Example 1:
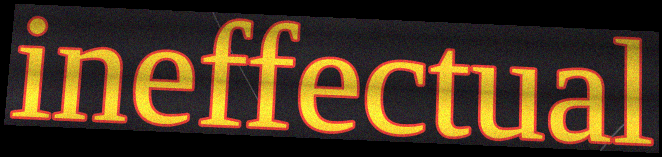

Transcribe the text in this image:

ineffectual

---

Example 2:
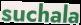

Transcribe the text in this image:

suchala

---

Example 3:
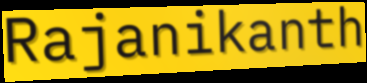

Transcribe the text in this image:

Rajanikanth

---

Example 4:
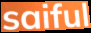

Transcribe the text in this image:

saiful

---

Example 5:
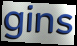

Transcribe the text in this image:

gins